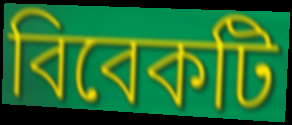
বিবেকটি